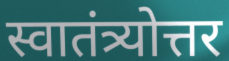
स्वातंत्र्योत्तर